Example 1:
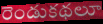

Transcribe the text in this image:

రెండుకథలూ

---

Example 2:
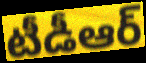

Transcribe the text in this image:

టీడీఆర్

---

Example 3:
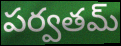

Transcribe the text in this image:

పర్వతమ్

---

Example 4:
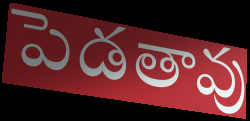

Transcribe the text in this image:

పెడతావు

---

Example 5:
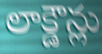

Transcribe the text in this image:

లాక్డౌన్లు